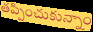
తప్పించుకున్నాం